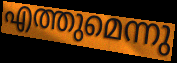
എത്തുമെന്നു